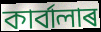
কাৰ্বালাৰ